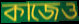
কাজেও